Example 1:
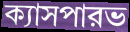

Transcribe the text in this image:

ক্যাসপারভ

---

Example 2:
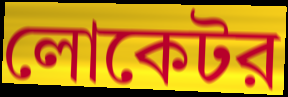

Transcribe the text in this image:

লোকেটর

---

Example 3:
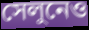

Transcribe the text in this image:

সেলুনেও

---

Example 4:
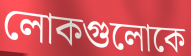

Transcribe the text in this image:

লোকগুলোকে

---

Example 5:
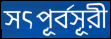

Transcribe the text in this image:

সৎপূর্বসূরী